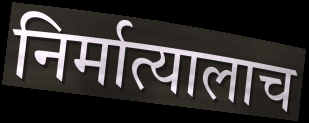
निर्मात्यालाच